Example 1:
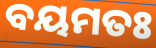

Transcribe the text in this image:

ବୟମତଃ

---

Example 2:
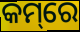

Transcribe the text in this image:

କମ୍‌ରେ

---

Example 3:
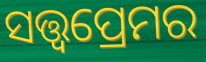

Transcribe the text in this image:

ସତ୍ତ୍ୱପ୍ରେମର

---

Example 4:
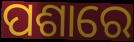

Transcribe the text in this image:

ପଶାରେ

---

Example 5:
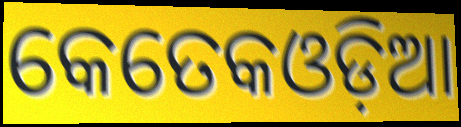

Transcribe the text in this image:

କେତେକଓଡ଼ିଆ